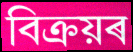
বিক্ৰয়ৰ